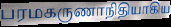
பரமகருணாநிதியாகிய